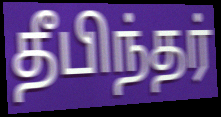
தீபிந்தர்